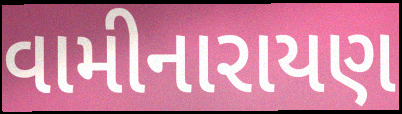
વામીનારાયણ